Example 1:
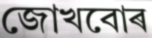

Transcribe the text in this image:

জোখবোৰ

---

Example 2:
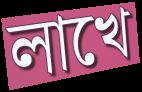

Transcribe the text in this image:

লাখে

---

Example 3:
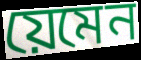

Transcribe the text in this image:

য়েমেন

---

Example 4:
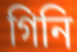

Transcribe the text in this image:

গিনি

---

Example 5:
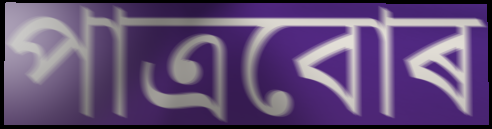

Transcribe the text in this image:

পাত্ৰবোৰ